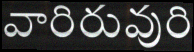
వారిరువురి